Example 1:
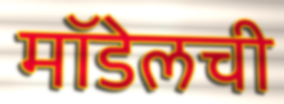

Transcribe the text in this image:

मॉडेलची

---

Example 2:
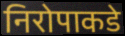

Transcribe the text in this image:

निरोपाकडे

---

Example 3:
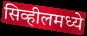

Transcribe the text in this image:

सिव्हीलमध्ये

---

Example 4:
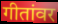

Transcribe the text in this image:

गीतांवर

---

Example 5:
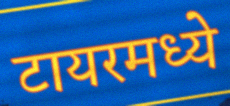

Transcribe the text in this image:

टायरमध्ये